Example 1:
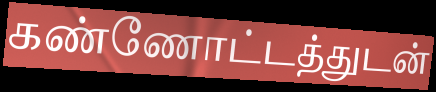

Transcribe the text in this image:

கண்ணோட்டத்துடன்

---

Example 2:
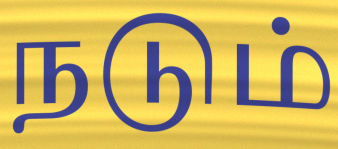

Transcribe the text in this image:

நடும்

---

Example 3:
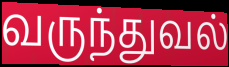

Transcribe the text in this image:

வருந்துவல்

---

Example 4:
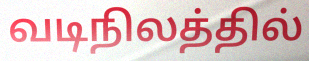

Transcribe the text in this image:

வடிநிலத்தில்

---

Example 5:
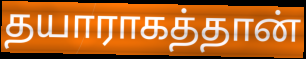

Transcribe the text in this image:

தயாராகத்தான்